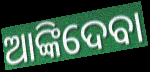
ଆଙ୍କିଦେବା